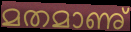
മതമാണു്